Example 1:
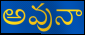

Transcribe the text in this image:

అవునా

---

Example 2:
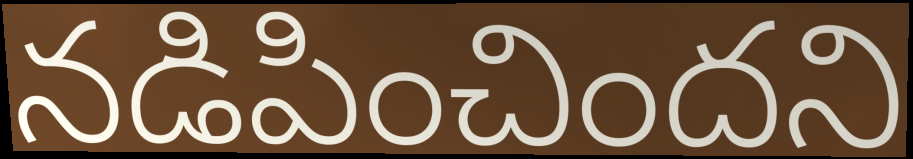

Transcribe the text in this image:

నడిపించిందని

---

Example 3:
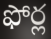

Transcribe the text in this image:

ఫోర్ల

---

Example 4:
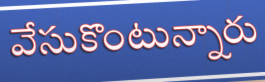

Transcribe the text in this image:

వేసుకొంటున్నారు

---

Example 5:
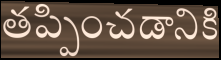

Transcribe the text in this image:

తప్పించడానికి